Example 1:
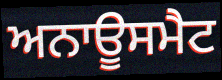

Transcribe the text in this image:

ਅਨਾਊਸਮੈਟ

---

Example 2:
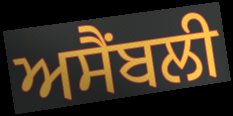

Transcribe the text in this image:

ਅਸੈਂਬਲੀ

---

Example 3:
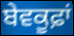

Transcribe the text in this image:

ਬੇਵਕੂਫ਼ਾਂ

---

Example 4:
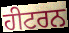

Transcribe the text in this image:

ਹੀਟਰਨ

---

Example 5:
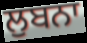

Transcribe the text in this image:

ਲੁਬਨਾ